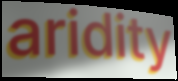
aridity